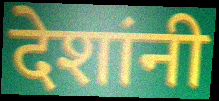
देशांनी